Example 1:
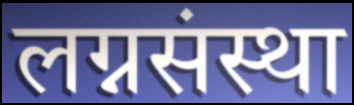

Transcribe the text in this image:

लग्नसंस्था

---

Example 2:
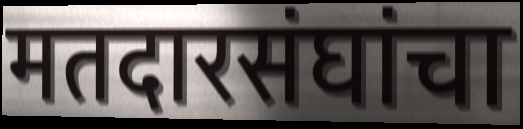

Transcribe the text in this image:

मतदारसंघांचा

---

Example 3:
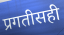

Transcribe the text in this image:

प्रगतीसही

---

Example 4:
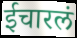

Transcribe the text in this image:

ईचारलं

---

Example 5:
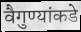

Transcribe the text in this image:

वैगुण्यांकडे